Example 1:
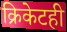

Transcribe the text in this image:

क्रिकेटही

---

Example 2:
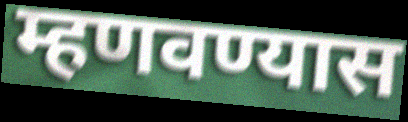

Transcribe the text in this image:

म्हणवण्यास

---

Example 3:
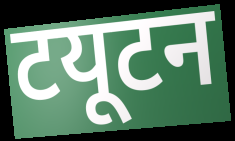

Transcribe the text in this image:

टयूटन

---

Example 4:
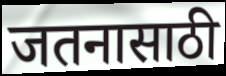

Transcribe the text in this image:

जतनासाठी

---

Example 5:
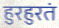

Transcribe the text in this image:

हुरहुरतं